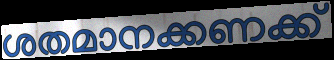
ശതമാനക്കണക്ക്